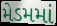
મેડમમાં